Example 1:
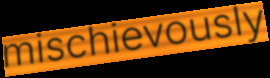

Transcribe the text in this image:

mischievously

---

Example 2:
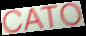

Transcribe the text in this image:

CATO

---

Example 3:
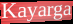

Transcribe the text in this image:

Kayarga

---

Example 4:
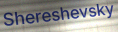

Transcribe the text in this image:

Shereshevsky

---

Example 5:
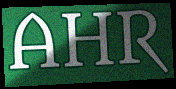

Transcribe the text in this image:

AHR